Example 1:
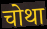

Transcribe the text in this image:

चोथा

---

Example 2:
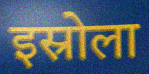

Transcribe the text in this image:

इस्रोला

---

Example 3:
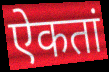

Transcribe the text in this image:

ऐकतां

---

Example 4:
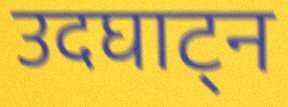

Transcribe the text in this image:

उदघाट्न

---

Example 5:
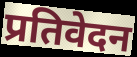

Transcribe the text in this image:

प्रतिवेदन